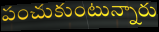
పంచుకుంటున్నారు